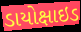
ડાયોક્ષાઇડ